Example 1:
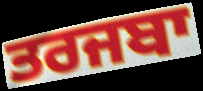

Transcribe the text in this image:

ਤਰਜਬਾ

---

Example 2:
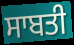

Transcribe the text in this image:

ਸਾਬਤੀ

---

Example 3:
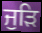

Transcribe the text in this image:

ਜੁੜਿ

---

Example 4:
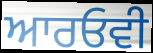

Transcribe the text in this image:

ਆਰਓਵੀ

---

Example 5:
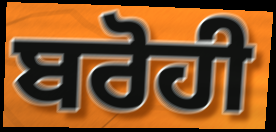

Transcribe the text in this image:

ਬਰੋਹੀ